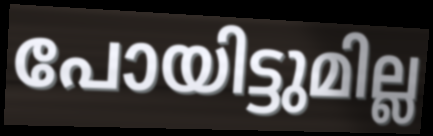
പോയിട്ടുമില്ല